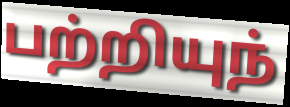
பற்றியுந்